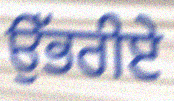
ਉੱਭਰੀਏ